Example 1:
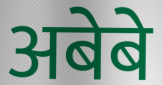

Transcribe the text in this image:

अबेबे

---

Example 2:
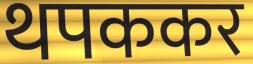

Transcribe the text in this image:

थपककर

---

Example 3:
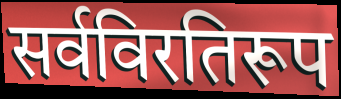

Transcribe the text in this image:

सर्वविरतिरूप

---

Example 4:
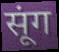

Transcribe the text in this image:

सूंग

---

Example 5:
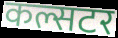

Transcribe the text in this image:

कल्सटर